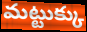
మట్టుక్కు